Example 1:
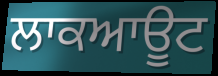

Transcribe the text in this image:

ਲਾਕਆਊਟ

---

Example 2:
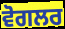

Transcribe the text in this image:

ਵੋਗਲਰ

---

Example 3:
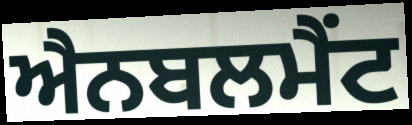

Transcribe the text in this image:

ਐਨਬਲਮੈਂਟ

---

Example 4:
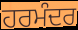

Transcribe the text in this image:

ਹਰਮੰਦਰ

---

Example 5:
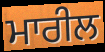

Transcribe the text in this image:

ਮਾਰੀਲ